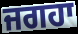
ਜਗਹਾ